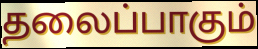
தலைப்பாகும்